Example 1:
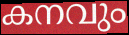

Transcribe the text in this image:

കനവും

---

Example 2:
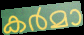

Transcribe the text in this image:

കർമാ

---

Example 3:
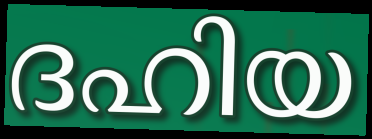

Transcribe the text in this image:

ദഹിയ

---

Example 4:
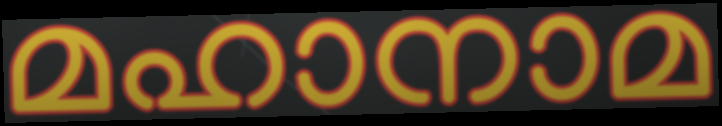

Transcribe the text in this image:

മഹാനാമ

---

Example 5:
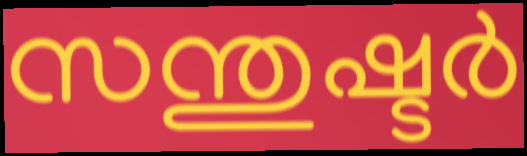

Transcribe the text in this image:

സന്തുഷ്ടർ